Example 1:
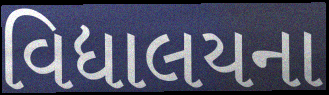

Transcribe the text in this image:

વિદ્યાલયના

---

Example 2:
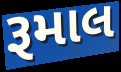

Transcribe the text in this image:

રૂમાલ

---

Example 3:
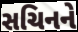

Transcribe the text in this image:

સચિનને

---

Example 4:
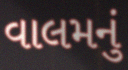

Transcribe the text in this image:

વાલમનું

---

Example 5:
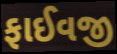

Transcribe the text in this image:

ફાઈવજી